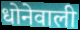
धोनेवाली